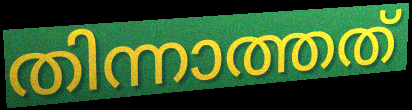
തിന്നാത്തത്